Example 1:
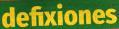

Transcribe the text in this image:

defixiones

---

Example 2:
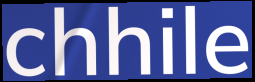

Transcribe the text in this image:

chhile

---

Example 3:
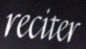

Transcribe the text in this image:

reciter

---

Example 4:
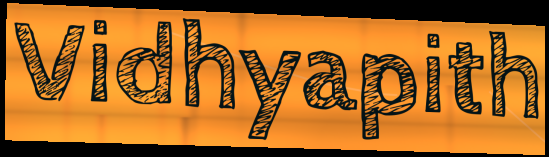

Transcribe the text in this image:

Vidhyapith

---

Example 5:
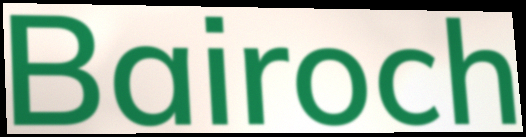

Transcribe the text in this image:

Bairoch